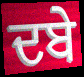
ਦਬੇ